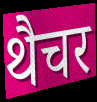
थैचर